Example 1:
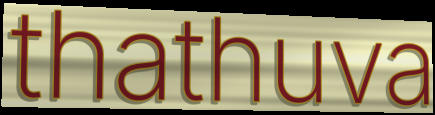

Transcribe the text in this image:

thathuva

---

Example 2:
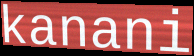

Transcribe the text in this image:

kanani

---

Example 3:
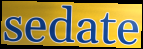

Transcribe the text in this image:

sedate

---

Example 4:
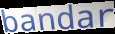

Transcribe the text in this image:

bandar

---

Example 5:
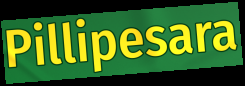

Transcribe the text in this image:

Pillipesara